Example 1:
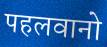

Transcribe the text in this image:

पहलवानो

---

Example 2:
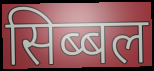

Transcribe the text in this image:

सिब्बल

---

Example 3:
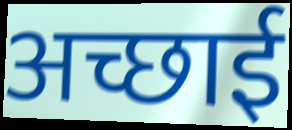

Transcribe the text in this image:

अच्छाई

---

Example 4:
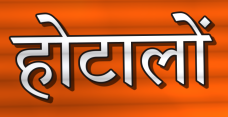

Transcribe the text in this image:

होटालों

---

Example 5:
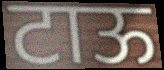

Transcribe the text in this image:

टाऊ